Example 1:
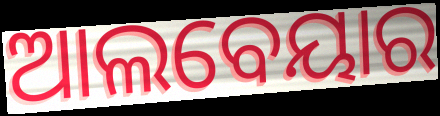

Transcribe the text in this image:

ଆଲବେୟାର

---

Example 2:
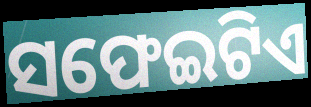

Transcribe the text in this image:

ସଫେଇଟିଏ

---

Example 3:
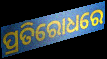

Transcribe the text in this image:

ପ୍ରତିରୋଧରେ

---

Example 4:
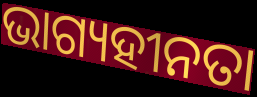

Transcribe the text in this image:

ଭାଗ୍ୟହୀନତା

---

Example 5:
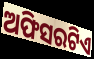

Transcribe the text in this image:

ଅଫିସରଟିଏ